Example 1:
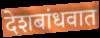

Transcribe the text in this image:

देशबांधवात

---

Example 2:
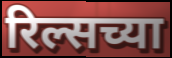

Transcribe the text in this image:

रिल्सच्या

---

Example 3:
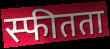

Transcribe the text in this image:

स्फीतता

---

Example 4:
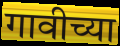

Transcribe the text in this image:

गावीच्या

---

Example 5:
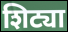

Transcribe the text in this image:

शिट्या